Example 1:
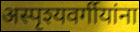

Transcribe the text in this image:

अस्पृश्यवर्गीयांना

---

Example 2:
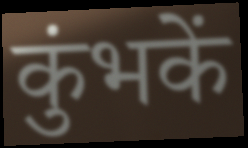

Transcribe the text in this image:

कुंभकें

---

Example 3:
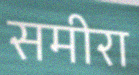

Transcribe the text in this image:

समीरा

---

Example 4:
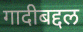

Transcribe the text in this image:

गादीबद्दल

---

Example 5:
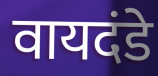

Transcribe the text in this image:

वायदंडे